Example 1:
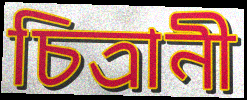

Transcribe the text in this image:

চিত্রানী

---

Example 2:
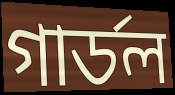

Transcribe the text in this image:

গার্ডল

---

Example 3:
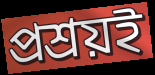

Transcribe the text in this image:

প্রশ্রয়ই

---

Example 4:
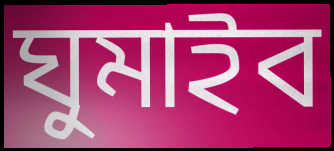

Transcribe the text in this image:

ঘুমাইব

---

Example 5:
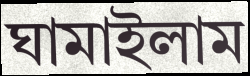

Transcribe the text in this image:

ঘামাইলাম